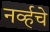
नर्व्हचे